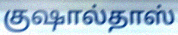
குஷால்தாஸ்